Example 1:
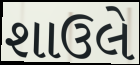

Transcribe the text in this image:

શાઉલે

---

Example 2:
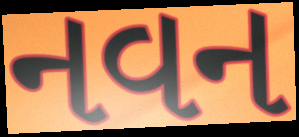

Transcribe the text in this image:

નવન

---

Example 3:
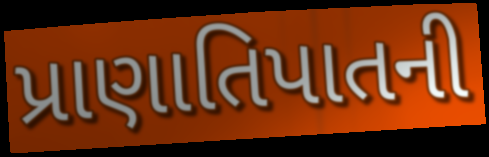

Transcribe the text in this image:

પ્રાણાતિપાતની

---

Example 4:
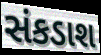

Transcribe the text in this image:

સંકડાશ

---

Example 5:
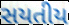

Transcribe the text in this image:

સયતીય